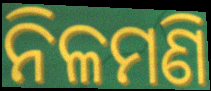
ନିଳମଣି